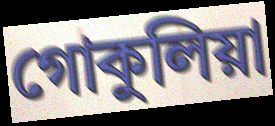
গোকুলিয়া